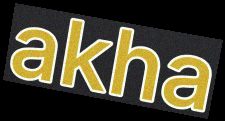
akha